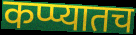
कप्प्यातच